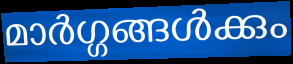
മാർഗ്ഗങ്ങൾക്കും